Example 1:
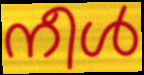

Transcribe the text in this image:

നീൾ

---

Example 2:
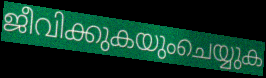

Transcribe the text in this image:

ജീവിക്കുകയുംചെയ്യുക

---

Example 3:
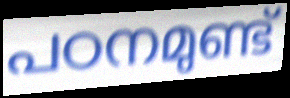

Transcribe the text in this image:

പഠനമുണ്ട്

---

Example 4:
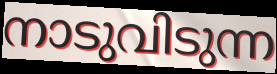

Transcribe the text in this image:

നാടുവിടുന്ന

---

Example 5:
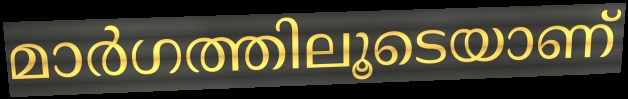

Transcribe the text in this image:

മാർഗത്തിലൂടെയാണ്